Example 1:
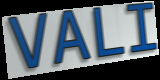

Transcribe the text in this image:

VALI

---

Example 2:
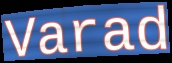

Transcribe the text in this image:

Varad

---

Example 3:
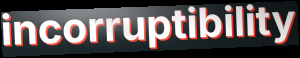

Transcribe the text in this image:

incorruptibility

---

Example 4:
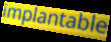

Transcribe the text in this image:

implantable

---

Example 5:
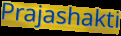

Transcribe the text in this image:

Prajashakti